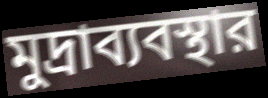
মুদ্রাব্যবস্থার